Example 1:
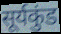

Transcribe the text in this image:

सूर्यकुंड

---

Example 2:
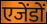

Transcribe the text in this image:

एजेंडों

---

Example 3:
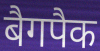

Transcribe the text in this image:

बैगपैक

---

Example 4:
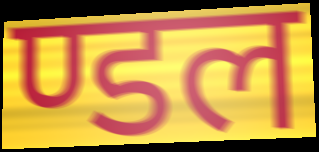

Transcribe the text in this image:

ण्डल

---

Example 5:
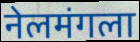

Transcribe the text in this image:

नेलमंगला